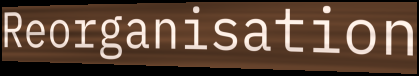
Reorganisation